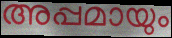
അപ്പമായും